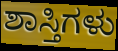
ಶಾಸ್ತಿಗಳು